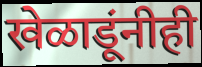
खेळाडूंनीही